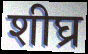
शीघ्र